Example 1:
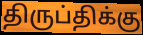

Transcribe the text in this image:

திருப்திக்கு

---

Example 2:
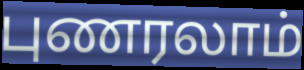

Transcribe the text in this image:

புணரலாம்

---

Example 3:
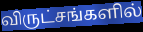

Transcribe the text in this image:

விருட்சங்களில்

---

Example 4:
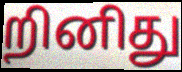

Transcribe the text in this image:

றினிது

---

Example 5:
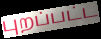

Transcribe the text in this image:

புறப்பட்ட